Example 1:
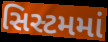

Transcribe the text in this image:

સિસ્ટમમાં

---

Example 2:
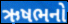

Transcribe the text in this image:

ઋષભનો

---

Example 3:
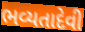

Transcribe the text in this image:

ભવ્યતાદેવી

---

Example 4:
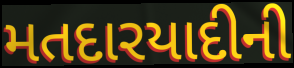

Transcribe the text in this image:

મતદારયાદીની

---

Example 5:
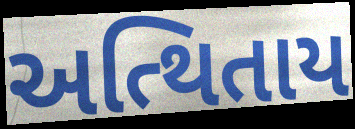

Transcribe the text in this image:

અત્થિતાય